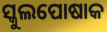
ସ୍କୁଲପୋଷାକ